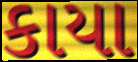
કાયા